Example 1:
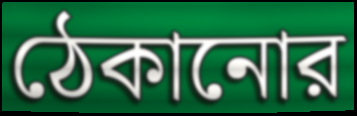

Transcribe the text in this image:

ঠেকানোর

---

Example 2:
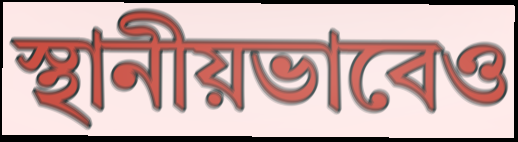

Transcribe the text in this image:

স্থানীয়ভাবেও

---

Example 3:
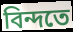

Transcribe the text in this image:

বিন্দতে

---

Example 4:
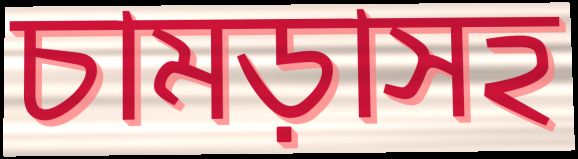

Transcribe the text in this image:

চামড়াসহ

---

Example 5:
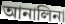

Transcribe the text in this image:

আনালিনা